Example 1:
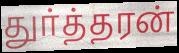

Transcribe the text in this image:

துர்த்தரன்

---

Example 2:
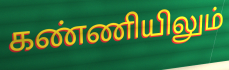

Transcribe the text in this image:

கண்ணியிலும்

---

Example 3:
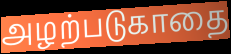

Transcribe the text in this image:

அழற்படுகாதை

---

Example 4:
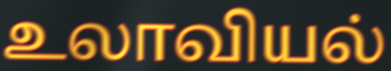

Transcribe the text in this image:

உலாவியல்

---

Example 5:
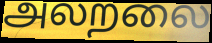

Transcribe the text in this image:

அலறலை